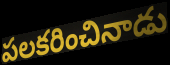
పలకరించినాడు